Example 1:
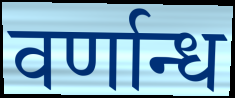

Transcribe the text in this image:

वर्णान्ध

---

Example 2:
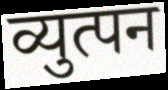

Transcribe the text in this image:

व्युत्पन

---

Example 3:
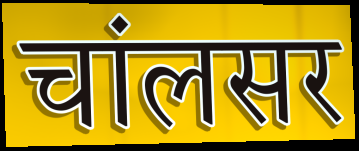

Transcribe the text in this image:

चांलसर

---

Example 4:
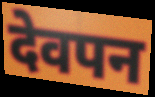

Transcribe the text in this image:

देवपन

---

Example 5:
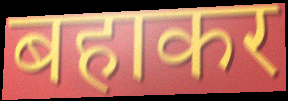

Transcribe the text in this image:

बहाकर